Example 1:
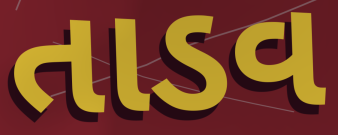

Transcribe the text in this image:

તાડવ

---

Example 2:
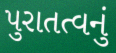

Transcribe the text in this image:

પુરાતત્વનું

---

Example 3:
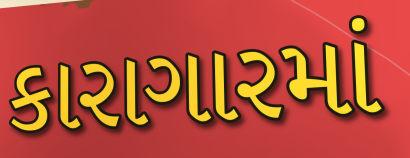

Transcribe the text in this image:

કારાગારમાં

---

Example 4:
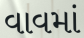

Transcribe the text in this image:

વાવમાં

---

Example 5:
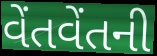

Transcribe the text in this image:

વેંતવેંતની